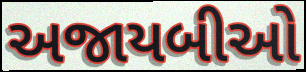
અજાયબીઓ